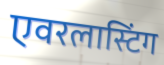
एवरलास्टिंग